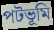
পটভূমি